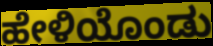
ಹೇಳಿಯೊಂಡು